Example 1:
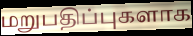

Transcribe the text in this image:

மறுபதிப்புகளாக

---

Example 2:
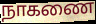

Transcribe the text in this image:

நாகணை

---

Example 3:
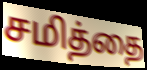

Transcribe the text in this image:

சமித்தை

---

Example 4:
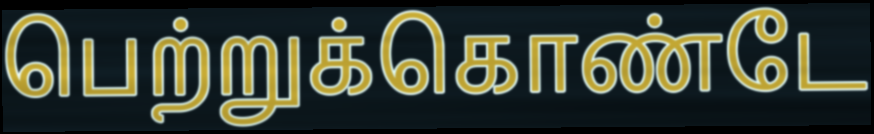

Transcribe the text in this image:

பெற்றுக்கொண்டே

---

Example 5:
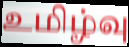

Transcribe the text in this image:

உமிழ்வு